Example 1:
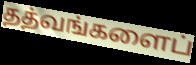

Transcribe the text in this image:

தத்வங்களைப்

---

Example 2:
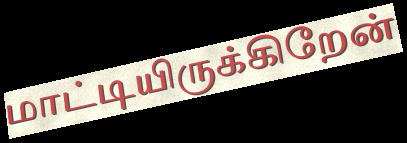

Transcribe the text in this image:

மாட்டியிருக்கிறேன்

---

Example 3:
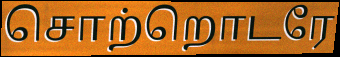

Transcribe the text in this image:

சொற்றொடரே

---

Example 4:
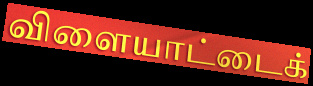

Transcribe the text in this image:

விளையாட்டைக்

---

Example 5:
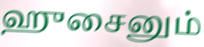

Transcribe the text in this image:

ஹுசைனும்